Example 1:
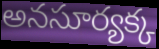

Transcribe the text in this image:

అనసూర్యక్క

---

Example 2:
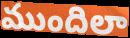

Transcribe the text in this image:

ముందిలా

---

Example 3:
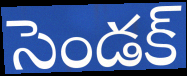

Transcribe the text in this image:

సెండక్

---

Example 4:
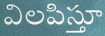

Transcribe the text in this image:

విలపిస్తూ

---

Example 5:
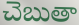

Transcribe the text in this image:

చెబుతా